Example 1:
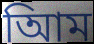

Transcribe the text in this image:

আিম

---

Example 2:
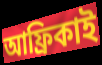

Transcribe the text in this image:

আফ্রিকাই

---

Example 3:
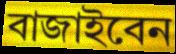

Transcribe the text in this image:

বাজাইবেন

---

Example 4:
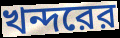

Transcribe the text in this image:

খন্দরের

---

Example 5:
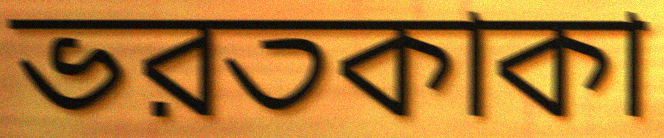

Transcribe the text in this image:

ভরতকাকা